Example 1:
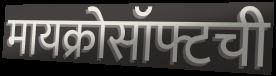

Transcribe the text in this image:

मायक्रोसॉफ्टची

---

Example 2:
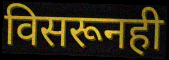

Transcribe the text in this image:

विसरूनही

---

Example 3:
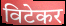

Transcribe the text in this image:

विटेकर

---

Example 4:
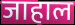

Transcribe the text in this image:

जाहाल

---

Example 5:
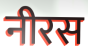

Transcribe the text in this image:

नीरस